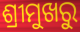
ଶ୍ରୀମୁଖରୁ